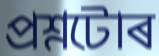
প্ৰশ্নটোৰ